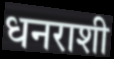
धनराशी